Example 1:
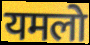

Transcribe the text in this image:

यमलो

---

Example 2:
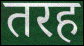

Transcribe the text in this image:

तरह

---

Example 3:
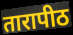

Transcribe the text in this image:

तारापीठ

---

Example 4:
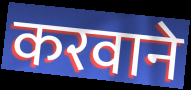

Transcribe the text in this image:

करवाने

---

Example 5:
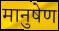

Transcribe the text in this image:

मानुषेण